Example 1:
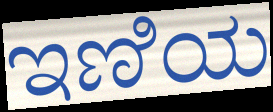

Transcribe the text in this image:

ಇಣಿಯ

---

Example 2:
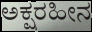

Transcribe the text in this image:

ಅಕ್ಷರಹೀನ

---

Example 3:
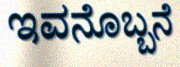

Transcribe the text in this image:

ಇವನೊಬ್ಬನೆ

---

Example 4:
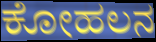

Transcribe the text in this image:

ಕೋಹಲನ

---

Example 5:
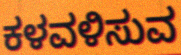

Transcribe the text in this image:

ಕಳವಳಿಸುವ